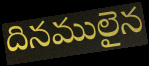
దినములైన